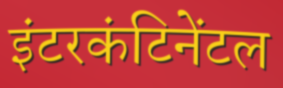
इंटरकंटिनेंटल